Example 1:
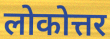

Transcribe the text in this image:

लोकोत्तर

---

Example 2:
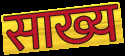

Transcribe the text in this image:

साख्य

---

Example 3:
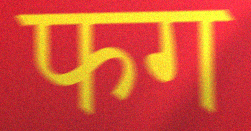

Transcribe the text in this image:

फग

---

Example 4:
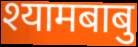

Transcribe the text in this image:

श्यामबाबु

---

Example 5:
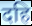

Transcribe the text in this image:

दहि